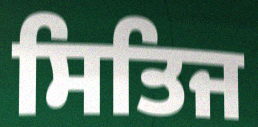
ਸਿਤਿਜ